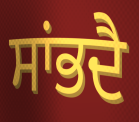
ਸਾਂਭਦੈ